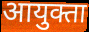
आयुक्ता